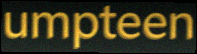
umpteen